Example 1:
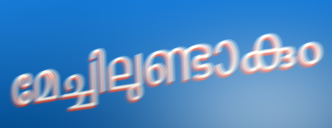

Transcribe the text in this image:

മേച്ചിലുണ്ടാകും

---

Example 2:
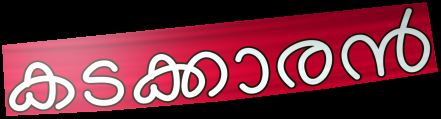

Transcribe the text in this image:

കടക്കാരൻ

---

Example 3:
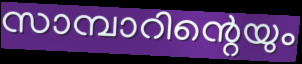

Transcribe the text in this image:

സാമ്പാറിന്റെയും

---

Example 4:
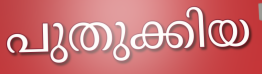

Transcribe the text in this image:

പുതുക്കിയ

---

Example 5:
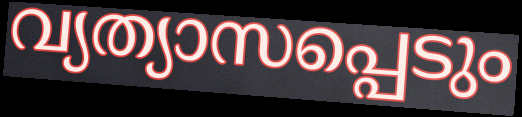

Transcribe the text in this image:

വ്യത്യാസപ്പെടും